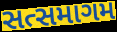
સત્સમાગમ